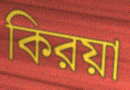
কিরয়া